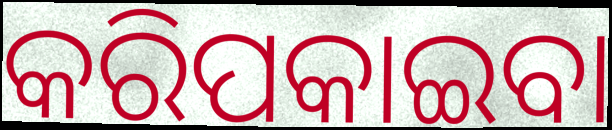
କରିପକାଇବା